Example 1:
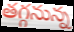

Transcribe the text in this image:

తగ్గనున్న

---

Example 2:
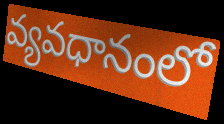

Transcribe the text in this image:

వ్యవధానంలో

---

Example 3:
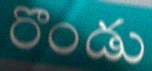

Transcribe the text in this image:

రొండు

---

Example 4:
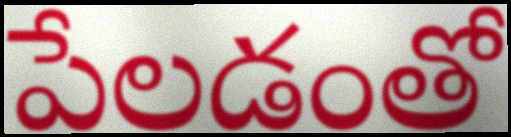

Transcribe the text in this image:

పేలడంతో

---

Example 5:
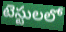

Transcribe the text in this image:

టెస్టులలో